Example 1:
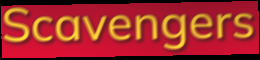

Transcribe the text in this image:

Scavengers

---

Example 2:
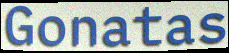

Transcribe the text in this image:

Gonatas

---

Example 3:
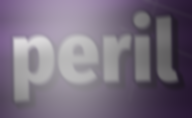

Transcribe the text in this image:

peril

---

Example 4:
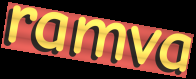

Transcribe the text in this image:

ramva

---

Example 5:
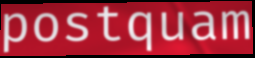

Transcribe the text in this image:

postquam